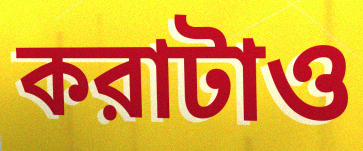
করাটাও